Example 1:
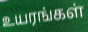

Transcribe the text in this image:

உயரங்கள்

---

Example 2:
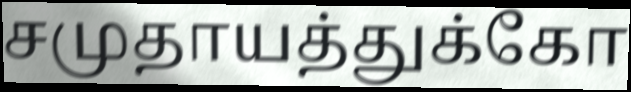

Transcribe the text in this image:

சமுதாயத்துக்கோ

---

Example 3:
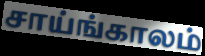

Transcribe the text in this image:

சாய்ங்காலம்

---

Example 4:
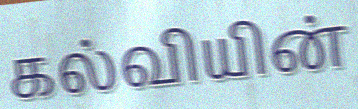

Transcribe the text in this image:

கல்வியின்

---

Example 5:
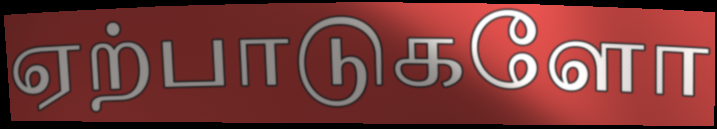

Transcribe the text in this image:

ஏற்பாடுகளோ